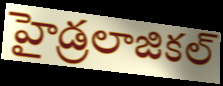
హైడ్రలాజికల్